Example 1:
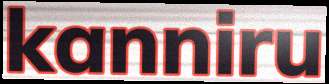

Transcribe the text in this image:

kanniru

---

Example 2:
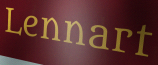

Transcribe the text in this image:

Lennart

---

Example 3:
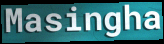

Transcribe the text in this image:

Masingha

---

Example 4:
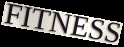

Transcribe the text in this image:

FITNESS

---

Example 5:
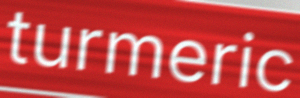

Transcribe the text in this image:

turmeric